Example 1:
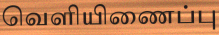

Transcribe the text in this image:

வெளியிணைப்பு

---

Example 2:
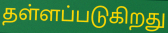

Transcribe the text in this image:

தள்ளப்படுகிறது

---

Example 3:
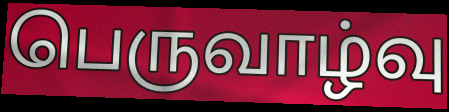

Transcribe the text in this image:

பெருவாழ்வு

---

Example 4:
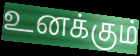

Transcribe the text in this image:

உனக்கும்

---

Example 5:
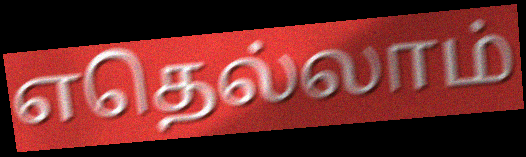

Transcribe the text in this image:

எதெல்லாம்